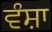
ਵੰਸ਼ਾ